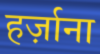
हर्ज़ाना